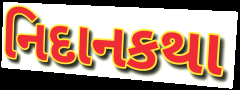
નિદાનકથા